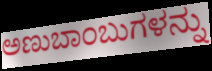
ಅಣುಬಾಂಬುಗಳನ್ನು